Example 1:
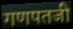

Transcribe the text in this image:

गणपतजी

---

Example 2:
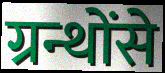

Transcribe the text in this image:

ग्रन्थोंसे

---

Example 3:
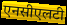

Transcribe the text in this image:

एनसीएलटी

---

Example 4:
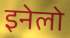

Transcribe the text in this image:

इनेलो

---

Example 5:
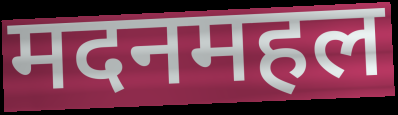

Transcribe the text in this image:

मदनमहल